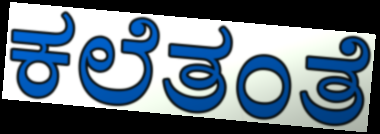
ಕಲೆತಂತೆ